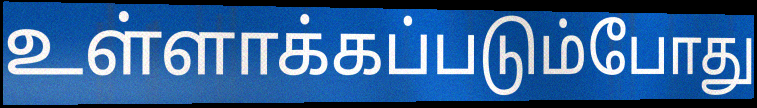
உள்ளாக்கப்படும்போது